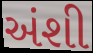
અંશી